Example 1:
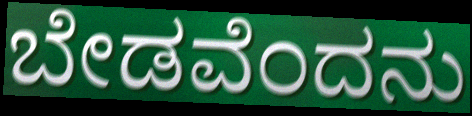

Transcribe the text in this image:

ಬೇಡವೆಂದನು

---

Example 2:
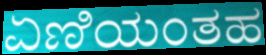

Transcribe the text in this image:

ಏಣಿಯಂತಹ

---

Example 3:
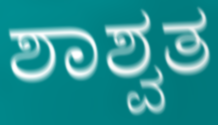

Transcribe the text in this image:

ಶಾಶ್ವತ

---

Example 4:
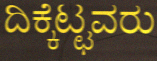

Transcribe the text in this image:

ದಿಕ್ಕೆಟ್ಟವರು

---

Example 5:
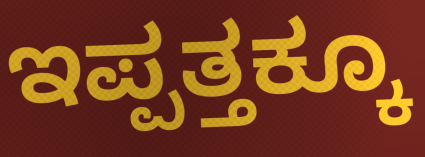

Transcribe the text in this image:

ಇಪ್ಪತ್ತಕ್ಕೂ